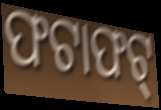
ଫଟାଫଟ୍